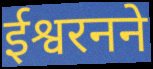
ईश्वरनने